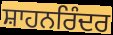
ਸ਼ਾਹਨਰਿੰਦਰ